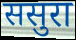
ससुरा